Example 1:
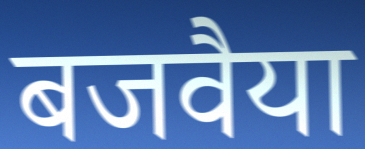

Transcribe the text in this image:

बजवैया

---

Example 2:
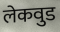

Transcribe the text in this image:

लेकवुड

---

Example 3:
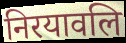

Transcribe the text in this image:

निरयावलि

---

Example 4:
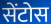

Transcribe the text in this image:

सेंटोस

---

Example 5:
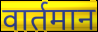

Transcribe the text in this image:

वार्तमान